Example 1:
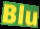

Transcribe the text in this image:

Blu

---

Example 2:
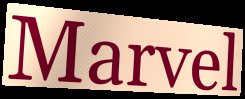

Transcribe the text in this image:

Marvel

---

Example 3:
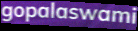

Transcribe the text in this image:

gopalaswami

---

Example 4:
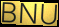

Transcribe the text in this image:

BNU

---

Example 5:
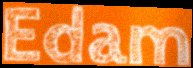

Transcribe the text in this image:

Edam